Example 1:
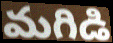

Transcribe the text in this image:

మగిడి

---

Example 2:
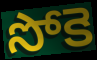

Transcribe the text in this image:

సోకె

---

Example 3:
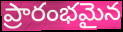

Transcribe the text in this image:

ప్రారంభమైన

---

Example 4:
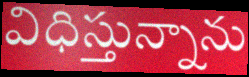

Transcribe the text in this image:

విధిస్తున్నాను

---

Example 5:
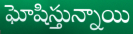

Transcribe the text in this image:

ఘోషిస్తున్నాయి